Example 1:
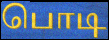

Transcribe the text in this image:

பொடி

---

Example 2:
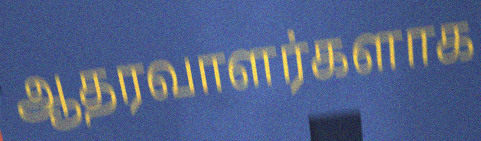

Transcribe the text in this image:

ஆதரவாளர்களாக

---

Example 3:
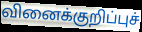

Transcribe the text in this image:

வினைக்குறிப்புச்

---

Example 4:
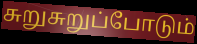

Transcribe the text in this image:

சுறுசுறுப்போடும்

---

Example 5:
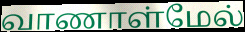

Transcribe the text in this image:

வாணாள்மேல்